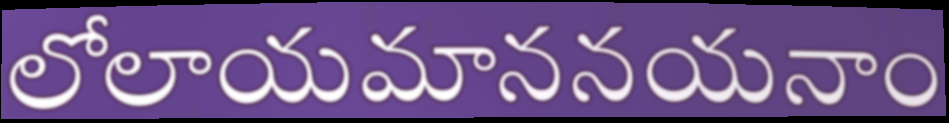
లోలాయమాననయనాం